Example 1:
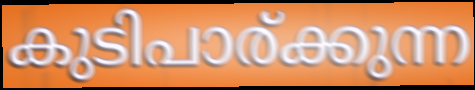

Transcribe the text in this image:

കുടിപാര്ക്കുന്ന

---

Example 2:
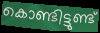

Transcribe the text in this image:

കൊണ്ടിട്ടുണ്ട്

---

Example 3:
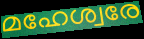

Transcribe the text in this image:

മഹേശ്വരേ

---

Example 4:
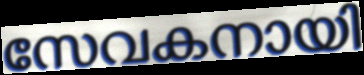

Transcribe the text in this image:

സേവകനായി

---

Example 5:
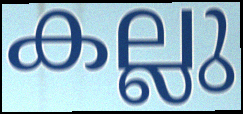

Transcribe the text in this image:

കല്ലു